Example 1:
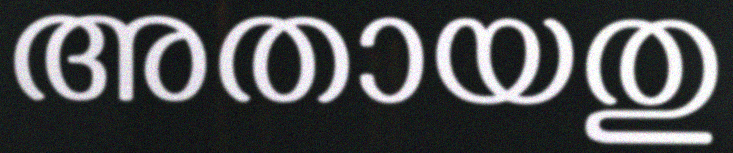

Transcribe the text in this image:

അതായതു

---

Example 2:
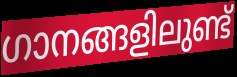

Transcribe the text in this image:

ഗാനങ്ങളിലുണ്ട്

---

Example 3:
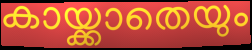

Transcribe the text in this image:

കായ്ക്കാതെയും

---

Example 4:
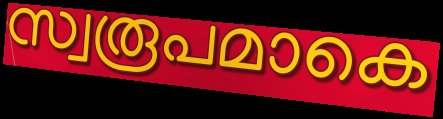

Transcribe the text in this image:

സ്വരൂപമാകെ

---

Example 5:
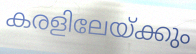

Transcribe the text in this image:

കരളിലേയ്ക്കും